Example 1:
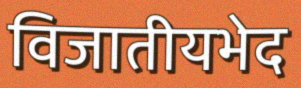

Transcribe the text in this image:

विजातीयभेद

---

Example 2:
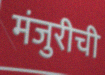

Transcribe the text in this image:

मंजुरीची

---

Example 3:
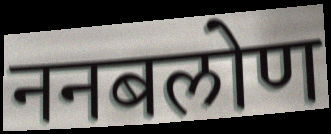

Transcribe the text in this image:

ननबलोण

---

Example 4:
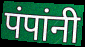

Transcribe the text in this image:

पंपांनी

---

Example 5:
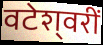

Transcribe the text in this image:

वटेश्वरीं